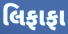
લિફાફા